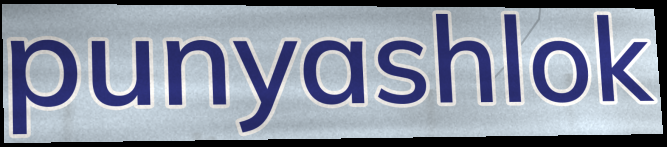
punyashlok